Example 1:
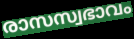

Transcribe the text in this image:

രാസസ്വഭാവം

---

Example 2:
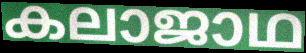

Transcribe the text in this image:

കലാജാഥ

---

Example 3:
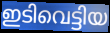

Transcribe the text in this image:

ഇടിവെട്ടിയ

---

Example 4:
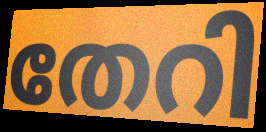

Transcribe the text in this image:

തേറി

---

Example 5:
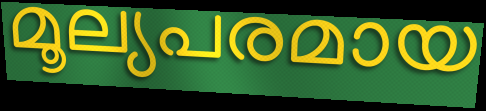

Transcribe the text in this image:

മൂല്യപരമായ